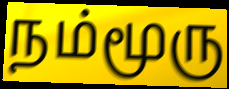
நம்மூரு